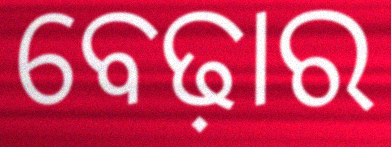
ବେଢ଼ାର